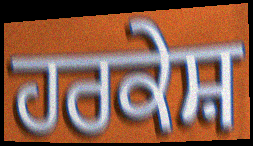
ਹਰਕੇਸ਼